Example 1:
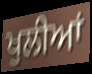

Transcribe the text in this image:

ਖੁਲੀਆਂ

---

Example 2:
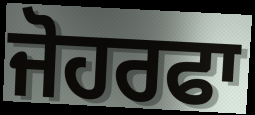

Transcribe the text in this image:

ਜੋਹਰਫਾ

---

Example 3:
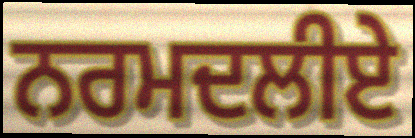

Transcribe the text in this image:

ਨਰਮਦਲੀਏ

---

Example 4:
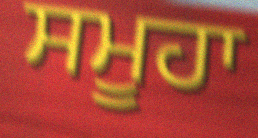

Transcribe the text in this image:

ਸਮੂਹਾ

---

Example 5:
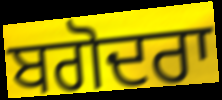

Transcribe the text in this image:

ਬਗੋਦਰਾ